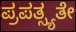
ಪ್ರಪತ್ಸ್ಯತೇ